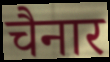
चैनार